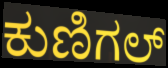
ಕುಣಿಗಲ್